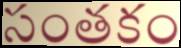
సంతకం